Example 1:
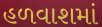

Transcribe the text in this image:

હળવાશમાં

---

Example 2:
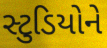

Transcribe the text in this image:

સ્ટુડિયોને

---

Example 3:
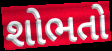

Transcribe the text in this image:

શોભતો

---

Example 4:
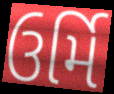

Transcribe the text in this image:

ઉર્મિ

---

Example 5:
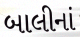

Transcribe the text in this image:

બાલીનાં